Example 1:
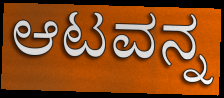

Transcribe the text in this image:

ಆಟವನ್ನ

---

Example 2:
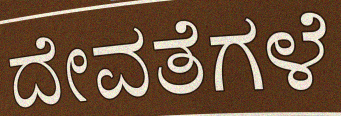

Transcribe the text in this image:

ದೇವತೆಗಳೆ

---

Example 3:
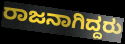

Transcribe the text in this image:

ರಾಜನಾಗಿದ್ದರು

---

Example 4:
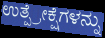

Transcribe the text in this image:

ಉತ್ಪ್ರೇಕ್ಷೆಗಳನ್ನು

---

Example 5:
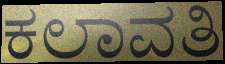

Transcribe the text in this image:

ಕಲಾವತಿ